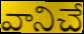
వానిచే